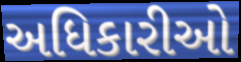
અધિકારીઓ